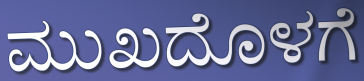
ಮುಖದೊಳಗೆ